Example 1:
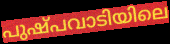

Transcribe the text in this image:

പുഷ്പവാടിയിലെ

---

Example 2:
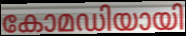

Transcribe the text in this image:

കോമഡിയായി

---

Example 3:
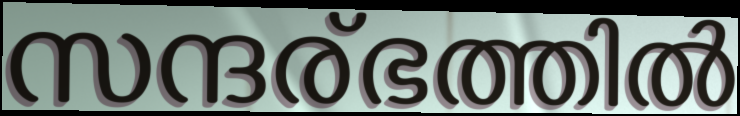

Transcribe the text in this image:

സന്ദര്ഭത്തിൽ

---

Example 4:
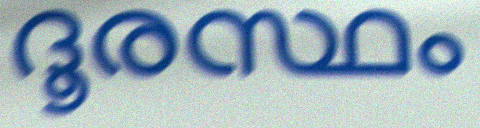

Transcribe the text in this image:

ദൂരസ്ഥം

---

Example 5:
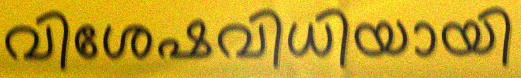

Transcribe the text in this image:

വിശേഷവിധിയായി